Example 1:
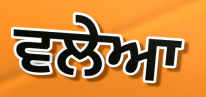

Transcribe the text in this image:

ਵਲੇਆ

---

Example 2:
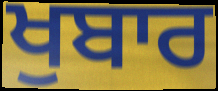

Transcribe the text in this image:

ਖੁਬਾਰ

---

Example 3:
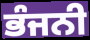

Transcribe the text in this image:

ਭੰਜਨੀ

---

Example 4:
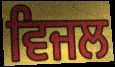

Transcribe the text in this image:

ਵਿਜਲ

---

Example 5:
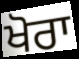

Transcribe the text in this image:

ਖੋਰਾ